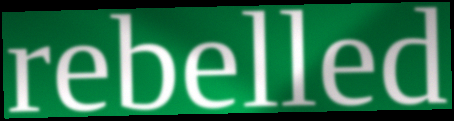
rebelled